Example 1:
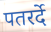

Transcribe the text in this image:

पतरर्दे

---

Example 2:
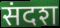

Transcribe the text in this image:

संदश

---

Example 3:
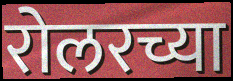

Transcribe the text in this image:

रोलरच्या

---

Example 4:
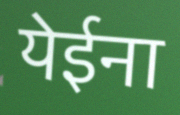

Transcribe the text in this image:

येईना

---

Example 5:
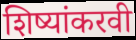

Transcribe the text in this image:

शिष्यांकरवी